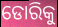
ଡୋରିକୁ